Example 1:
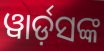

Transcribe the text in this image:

ୱାର୍ଡ଼ସଙ୍କ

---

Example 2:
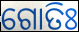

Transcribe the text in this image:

ଗୋତିଃ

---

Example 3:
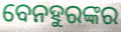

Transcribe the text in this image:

ବେନହୁରଙ୍କର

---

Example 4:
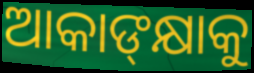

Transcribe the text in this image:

ଆକାଙ୍‍କ୍ଷାକୁ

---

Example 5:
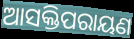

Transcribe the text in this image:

ଆସକ୍ତିପରାୟଣ